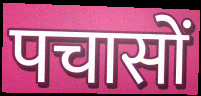
पचासों